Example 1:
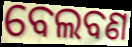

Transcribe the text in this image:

ବେଲବଣ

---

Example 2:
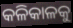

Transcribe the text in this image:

କଳିକାଳକୁ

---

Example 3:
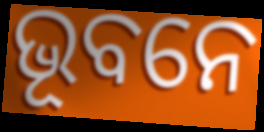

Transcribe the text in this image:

ଭୂବନେ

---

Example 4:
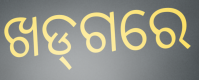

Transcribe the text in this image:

ଖଡ୍‌ଗରେ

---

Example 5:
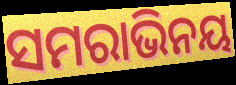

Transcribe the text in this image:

ସମରାଭିନୟ